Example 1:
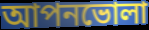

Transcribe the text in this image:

আপনভোলা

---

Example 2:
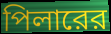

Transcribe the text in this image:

পিলারের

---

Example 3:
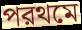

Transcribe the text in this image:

পরথমে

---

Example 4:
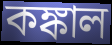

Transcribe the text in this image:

কঙ্কাল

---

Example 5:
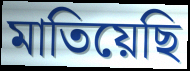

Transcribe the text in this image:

মাতিয়েছি